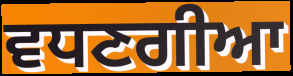
ਵਧਣਗੀਆ